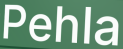
Pehla